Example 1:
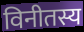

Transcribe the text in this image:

विनीतस्य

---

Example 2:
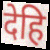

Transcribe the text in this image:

देहि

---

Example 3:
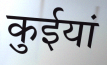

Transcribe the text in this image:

कुईयां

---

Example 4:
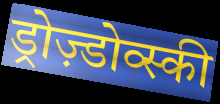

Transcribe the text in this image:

ड्रोज़्डोव्स्की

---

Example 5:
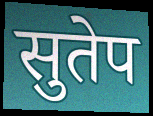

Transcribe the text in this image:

सुतेप